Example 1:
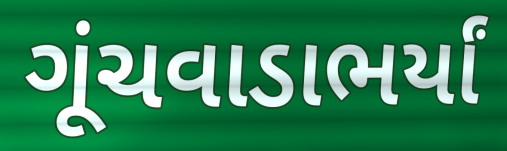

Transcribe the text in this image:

ગૂંચવાડાભર્યાં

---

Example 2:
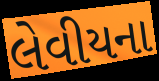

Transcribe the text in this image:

લેવીયના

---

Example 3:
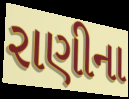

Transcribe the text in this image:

રાણીના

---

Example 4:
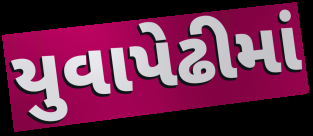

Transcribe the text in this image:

યુવાપેઢીમાં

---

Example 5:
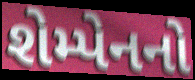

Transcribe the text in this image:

શેમ્પેનનો